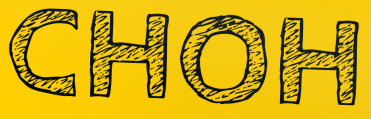
CHOH